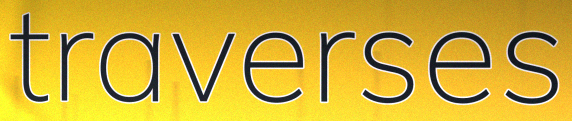
traverses